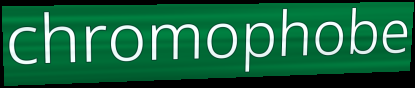
chromophobe